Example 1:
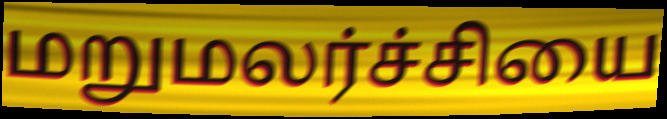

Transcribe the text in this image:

மறுமலர்ச்சியை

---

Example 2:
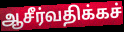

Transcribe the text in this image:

ஆசீர்வதிக்கச்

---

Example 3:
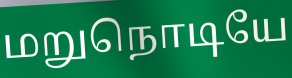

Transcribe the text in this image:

மறுநொடியே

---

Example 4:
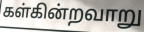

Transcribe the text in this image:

கள்கின்றவாறு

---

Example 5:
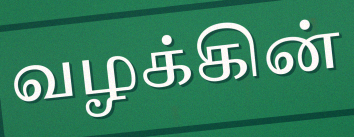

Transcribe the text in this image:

வழக்கின்